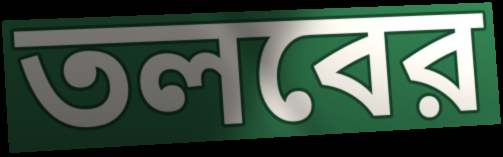
তলবের